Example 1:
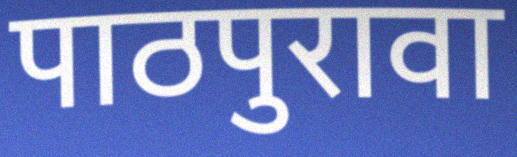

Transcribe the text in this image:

पाठपुरावा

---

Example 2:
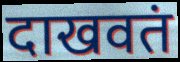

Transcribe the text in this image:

दाखवतं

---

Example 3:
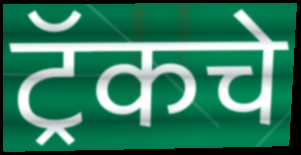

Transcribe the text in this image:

ट्रॅकचे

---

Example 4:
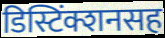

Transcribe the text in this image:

डिस्टिंक्शनसह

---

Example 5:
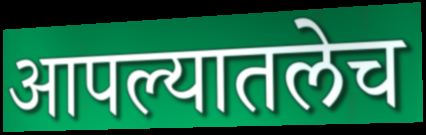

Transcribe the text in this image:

आपल्यातलेच